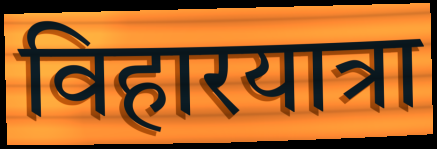
विहारयात्रा